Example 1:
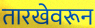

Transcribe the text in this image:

तारखेवरून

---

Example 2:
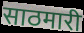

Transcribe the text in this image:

साठमारी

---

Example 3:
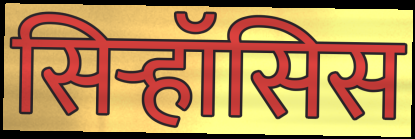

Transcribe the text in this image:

सिऱ्हॉसिस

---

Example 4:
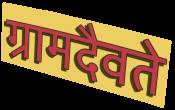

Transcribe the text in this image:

ग्रामदैवते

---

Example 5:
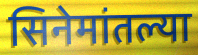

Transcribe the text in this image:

सिनेमांतल्या